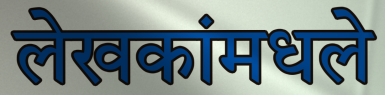
लेखकांमधले